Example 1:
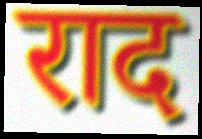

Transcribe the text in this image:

राद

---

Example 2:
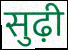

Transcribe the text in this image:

सुढ़ी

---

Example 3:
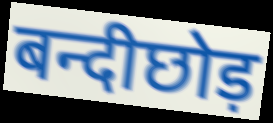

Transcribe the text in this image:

बन्दीछोड़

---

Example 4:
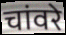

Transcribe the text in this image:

चांवरे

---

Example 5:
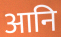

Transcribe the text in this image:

आनि